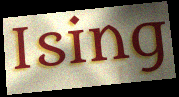
Ising